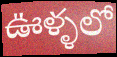
ఊళ్ళలో